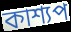
কাশ্যপ